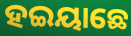
ହଇୟାଛେ